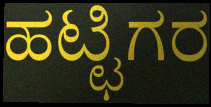
ಹಟ್ಟಿಗರ